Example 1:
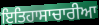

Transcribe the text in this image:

ਇਤਿਹਾਸਾਚਾਰੀਆ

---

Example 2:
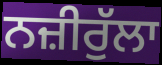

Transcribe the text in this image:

ਨਜ਼ੀਰੁੱਲਾ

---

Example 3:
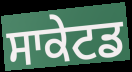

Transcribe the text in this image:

ਸਾਕੇਟਡ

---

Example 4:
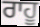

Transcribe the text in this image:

ਰਾਹੂ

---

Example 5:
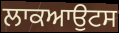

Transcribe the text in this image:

ਲਾਕਆਉਟਸ